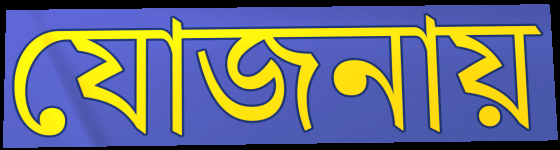
যোজনায়